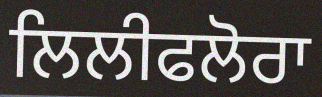
ਲਿਲੀਫਲੋਰਾ